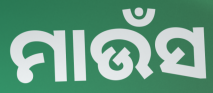
ମାଉଁସ